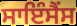
ਸਾਇੰਸੈਂਸ